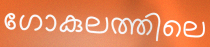
ഗോകുലത്തിലെ